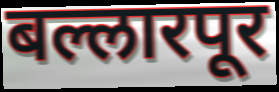
बल्लारपूर